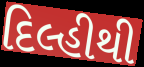
દિલ્હીથી